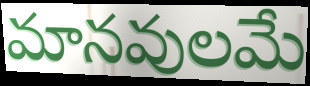
మానవులమే